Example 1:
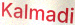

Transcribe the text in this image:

Kalmadi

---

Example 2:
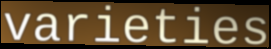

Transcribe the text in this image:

varieties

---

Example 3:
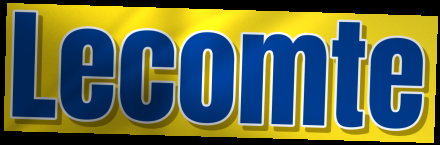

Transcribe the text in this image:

Lecomte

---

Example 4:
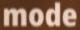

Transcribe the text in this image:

mode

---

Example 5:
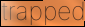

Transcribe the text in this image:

trapped